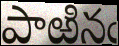
పాఱినఁ